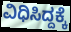
ವಿಧಿಸಿದ್ದಕ್ಕೆ